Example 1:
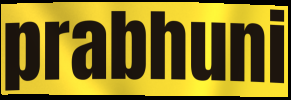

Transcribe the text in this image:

prabhuni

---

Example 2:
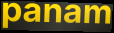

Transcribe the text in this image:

panam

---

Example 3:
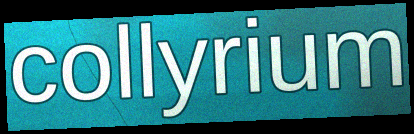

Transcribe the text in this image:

collyrium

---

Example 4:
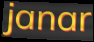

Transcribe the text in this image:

janar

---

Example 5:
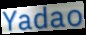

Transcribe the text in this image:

Yadao